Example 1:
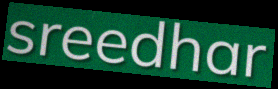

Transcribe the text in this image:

sreedhar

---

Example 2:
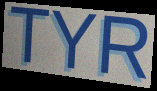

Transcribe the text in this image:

TYR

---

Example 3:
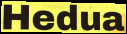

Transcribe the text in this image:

Hedua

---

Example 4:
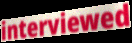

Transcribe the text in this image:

interviewed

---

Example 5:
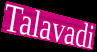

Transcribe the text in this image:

Talavadi